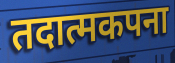
तदात्मकपना